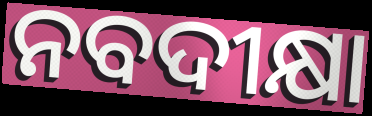
ନବଦୀକ୍ଷା